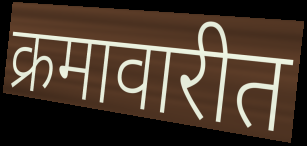
क्रमावारीत